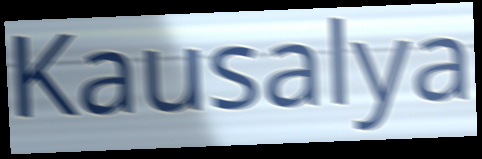
Kausalya